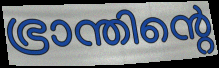
ഭ്രാന്തിന്റെ